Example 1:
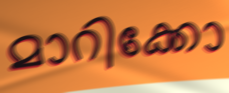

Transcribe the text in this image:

മാറിക്കോ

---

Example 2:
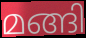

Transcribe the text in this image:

മങ്ങി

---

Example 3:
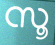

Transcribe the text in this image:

സൂ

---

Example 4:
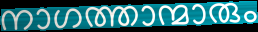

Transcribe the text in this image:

നാഗത്താന്മാരും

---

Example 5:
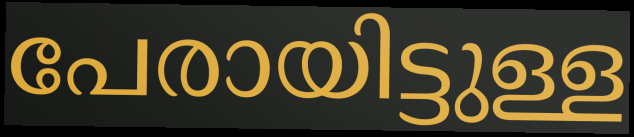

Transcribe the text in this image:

പേരായിട്ടുള്ള